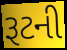
રૂટની